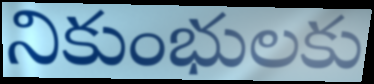
నికుంభులకు